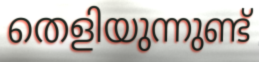
തെളിയുന്നുണ്ട്